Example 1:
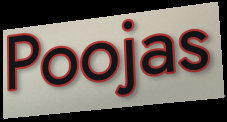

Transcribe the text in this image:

Poojas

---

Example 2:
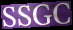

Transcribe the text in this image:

SSGC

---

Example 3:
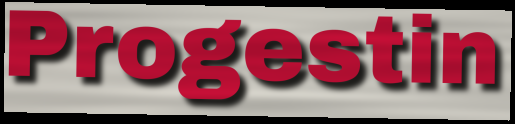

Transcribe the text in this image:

Progestin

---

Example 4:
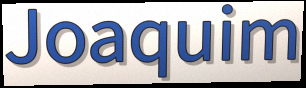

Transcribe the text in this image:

Joaquim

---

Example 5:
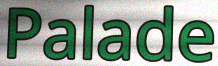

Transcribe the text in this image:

Palade